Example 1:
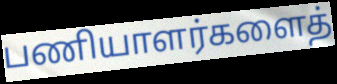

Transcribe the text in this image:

பணியாளர்களைத்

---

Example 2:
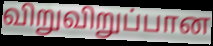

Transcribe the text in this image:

விறுவிறுப்பான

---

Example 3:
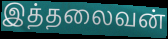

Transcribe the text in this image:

இத்தலைவன்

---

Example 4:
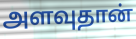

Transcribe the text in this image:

அளவுதான்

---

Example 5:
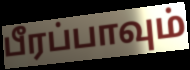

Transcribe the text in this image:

பீரப்பாவும்